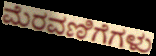
ಮೆರವಣಿಗೆಗಳು